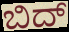
ಬಿದ್